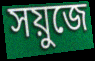
সয়ুজে